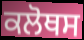
ਕਲੋਥਸ